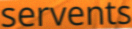
servents